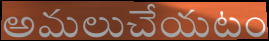
అమలుచేయటం